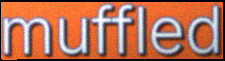
muffled